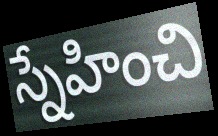
స్నేహించి